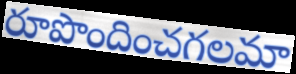
రూపొందించగలమా